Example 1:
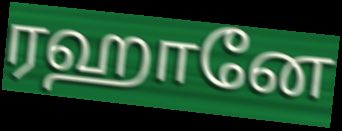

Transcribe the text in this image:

ரஹானே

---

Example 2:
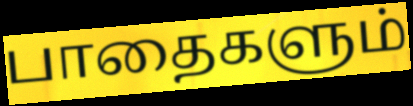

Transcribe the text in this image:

பாதைகளும்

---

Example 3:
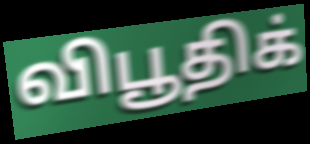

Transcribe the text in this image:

விபூதிக்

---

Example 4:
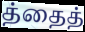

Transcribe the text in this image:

த்தைத்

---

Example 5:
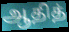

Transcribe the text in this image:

ஆதித்